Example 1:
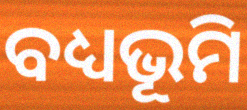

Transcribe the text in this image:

ବଧ୍ୟଭୂମି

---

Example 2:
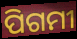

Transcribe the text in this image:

ପିଗମୀ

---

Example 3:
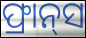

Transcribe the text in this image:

ଫ୍ରାନ୍‌ସ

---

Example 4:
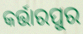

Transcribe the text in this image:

କର୍ତ୍ତାରପୁର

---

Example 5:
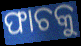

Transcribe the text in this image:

ଫାଚକୁ